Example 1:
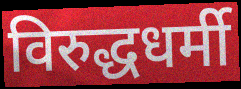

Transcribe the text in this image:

विरुद्धधर्मी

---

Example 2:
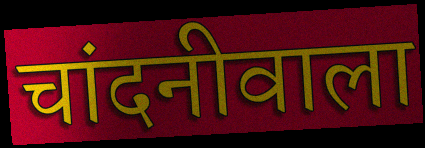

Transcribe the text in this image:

चांदनीवाला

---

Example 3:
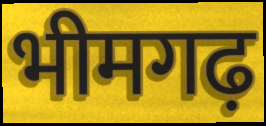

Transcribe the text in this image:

भीमगढ़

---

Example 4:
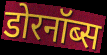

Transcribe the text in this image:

डोरनॉब्स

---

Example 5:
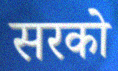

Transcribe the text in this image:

सरको